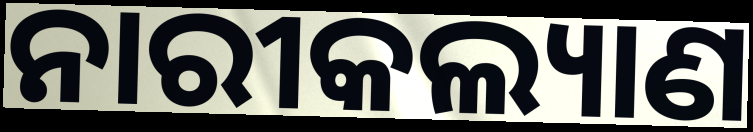
ନାରୀକଲ୍ୟାଣ